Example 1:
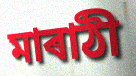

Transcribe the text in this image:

মাৰাঠী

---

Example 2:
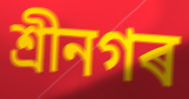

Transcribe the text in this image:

শ্ৰীনগৰ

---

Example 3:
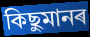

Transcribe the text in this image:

কিছুমানৰ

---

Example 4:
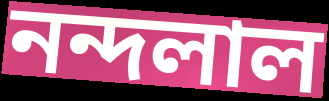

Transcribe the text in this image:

নন্দলাল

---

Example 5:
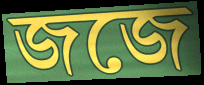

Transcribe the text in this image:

জজে